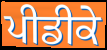
ਪੀਡੀਕੇ